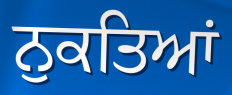
ਨੁਕਤਿਆਂ